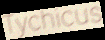
Tychicus